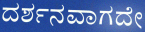
ದರ್ಶನವಾಗದೇ